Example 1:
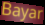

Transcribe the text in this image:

Bayar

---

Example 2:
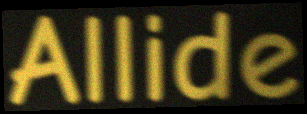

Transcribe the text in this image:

Allide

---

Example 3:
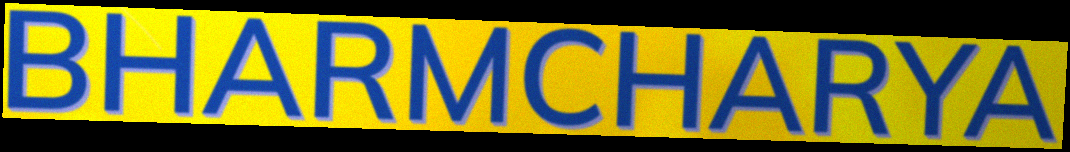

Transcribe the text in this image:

BHARMCHARYA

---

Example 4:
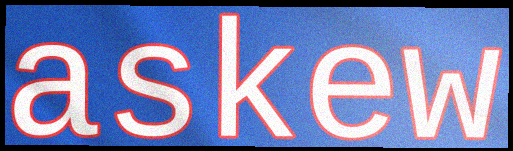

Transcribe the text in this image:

askew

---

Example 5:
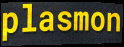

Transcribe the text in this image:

plasmon